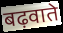
बढ़वाते